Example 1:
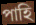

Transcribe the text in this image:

পাহি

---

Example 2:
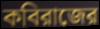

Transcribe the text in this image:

কবিরাজের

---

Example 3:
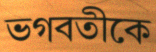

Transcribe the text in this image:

ভগবতীকে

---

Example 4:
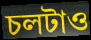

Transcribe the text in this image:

চলটাও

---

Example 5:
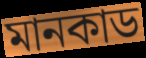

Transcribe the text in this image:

মানকাড